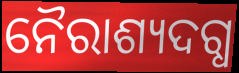
ନୈରାଶ୍ୟଦଗ୍ଧ